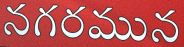
నగరమున